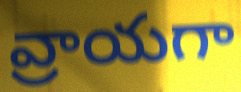
వ్రాయగా